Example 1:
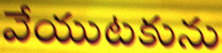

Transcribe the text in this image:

వేయుటకును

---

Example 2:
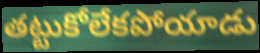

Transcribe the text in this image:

తట్టుకోలేకపోయాడు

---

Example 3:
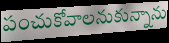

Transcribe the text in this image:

పంచుకోవాలనుకున్నాను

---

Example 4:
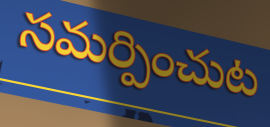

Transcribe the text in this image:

సమర్పించుట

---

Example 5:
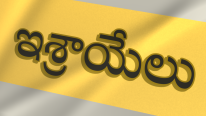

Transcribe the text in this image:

ఇశ్రాయేలు